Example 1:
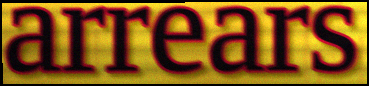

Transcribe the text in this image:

arrears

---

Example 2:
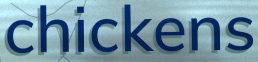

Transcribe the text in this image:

chickens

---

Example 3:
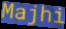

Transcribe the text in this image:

Majhi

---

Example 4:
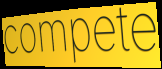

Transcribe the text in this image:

compete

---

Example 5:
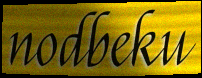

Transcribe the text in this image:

nodbeku